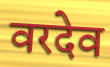
वरदेव